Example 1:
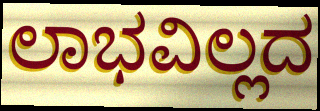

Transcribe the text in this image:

ಲಾಭವಿಲ್ಲದ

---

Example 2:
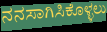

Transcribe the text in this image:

ನನಸಾಗಿಸಿಕೊಳ್ಳಲು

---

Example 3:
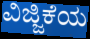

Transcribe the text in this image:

ವಿಜ್ಜಿಕೆಯ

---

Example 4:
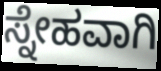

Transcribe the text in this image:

ಸ್ನೇಹವಾಗಿ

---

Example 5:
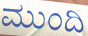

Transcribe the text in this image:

ಮುಂದಿ